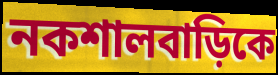
নকশালবাড়িকে